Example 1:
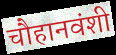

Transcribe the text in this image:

चौहानवंशी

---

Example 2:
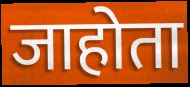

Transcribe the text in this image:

जाहोता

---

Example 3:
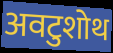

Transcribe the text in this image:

अवटुशोथ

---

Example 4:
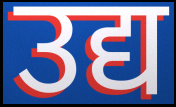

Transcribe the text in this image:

उद्य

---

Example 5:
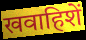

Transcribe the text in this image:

खवाहिशें